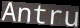
Antru